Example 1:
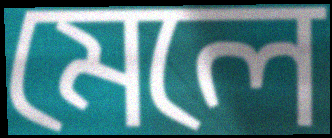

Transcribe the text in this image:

মেলে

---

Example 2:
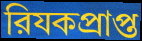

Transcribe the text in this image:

রিযকপ্রাপ্ত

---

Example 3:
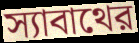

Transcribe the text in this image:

স্যাবাথের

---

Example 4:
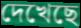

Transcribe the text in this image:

দেখেছে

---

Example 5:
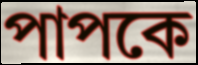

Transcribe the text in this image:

পাপকে